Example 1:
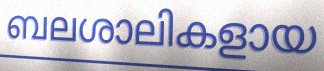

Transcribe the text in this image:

ബലശാലികളായ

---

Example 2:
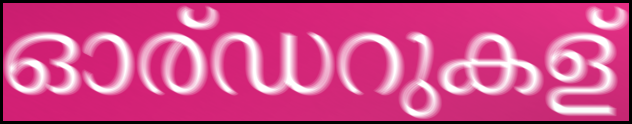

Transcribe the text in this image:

ഓര്ഡറുകള്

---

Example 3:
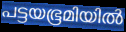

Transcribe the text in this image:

പട്ടയഭൂമിയിൽ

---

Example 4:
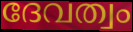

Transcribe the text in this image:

ദേവത്വം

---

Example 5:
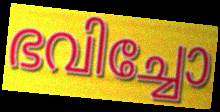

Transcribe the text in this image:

ഭവിച്ചോ